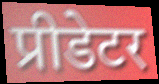
प्रीडेटर